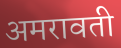
अमरावती